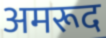
अमरूद